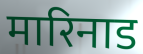
मारिनाड